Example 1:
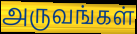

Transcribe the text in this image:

அருவங்கள்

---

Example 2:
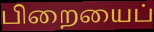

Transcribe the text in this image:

பிறையைப்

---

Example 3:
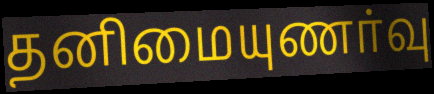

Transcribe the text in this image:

தனிமையுணர்வு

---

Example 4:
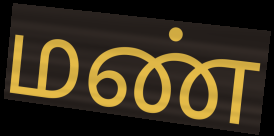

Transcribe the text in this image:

மண்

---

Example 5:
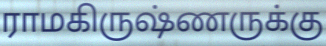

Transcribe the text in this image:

ராமகிருஷ்ணருக்கு